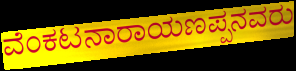
ವೆಂಕಟನಾರಾಯಣಪ್ಪನವರು